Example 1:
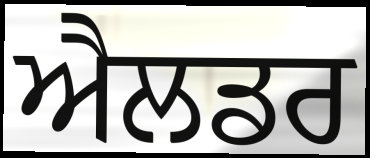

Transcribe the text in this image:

ਐਲਡਰ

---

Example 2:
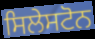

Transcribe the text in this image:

ਸਿਲੇਸਟੋਨ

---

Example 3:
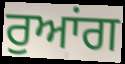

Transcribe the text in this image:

ਰੁਆਂਗ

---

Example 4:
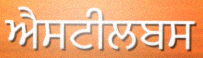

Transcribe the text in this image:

ਐਸਟੀਲਬਸ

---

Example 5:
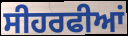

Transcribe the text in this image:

ਸੀਹਰਫੀਆਂ